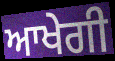
ਆਖੇਗੀ